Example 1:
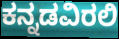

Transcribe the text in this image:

ಕನ್ನಡವಿರಲಿ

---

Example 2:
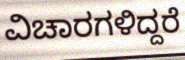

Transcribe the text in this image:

ವಿಚಾರಗಳಿದ್ದರೆ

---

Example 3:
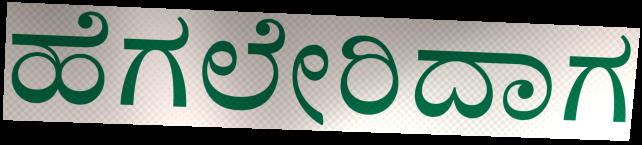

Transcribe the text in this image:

ಹೆಗಲೇರಿದಾಗ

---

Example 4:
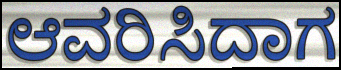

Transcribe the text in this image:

ಆವರಿಸಿದಾಗ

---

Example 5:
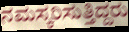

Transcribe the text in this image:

ನಮಸ್ಕರಿಸುತ್ತಿದ್ದರು